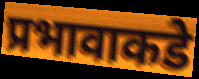
प्रभावाकडे